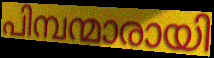
പിമ്പന്മാരായി